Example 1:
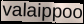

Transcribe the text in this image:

valaippoo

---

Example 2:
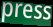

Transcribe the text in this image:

press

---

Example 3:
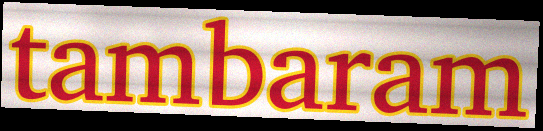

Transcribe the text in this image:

tambaram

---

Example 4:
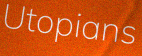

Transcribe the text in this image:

Utopians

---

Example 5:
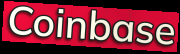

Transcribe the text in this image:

Coinbase